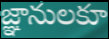
జ్ఞానులకూ